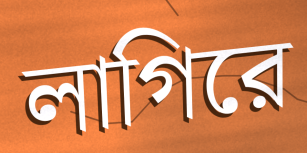
লাগিরে